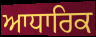
ਆਧਾਰਿਕ